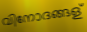
വിനോദങ്ങള്